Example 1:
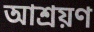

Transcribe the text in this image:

আশ্রয়ণ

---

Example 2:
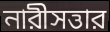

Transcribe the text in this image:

নারীসত্তার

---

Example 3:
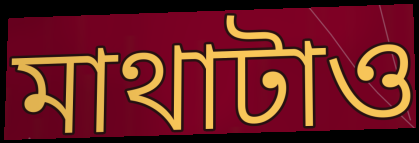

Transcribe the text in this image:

মাথাটাও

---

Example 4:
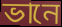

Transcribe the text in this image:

ভানে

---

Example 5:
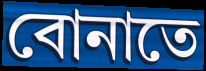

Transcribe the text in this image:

বোনাতে